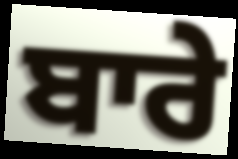
ਬਾਰੇ